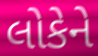
લોકેને